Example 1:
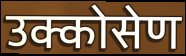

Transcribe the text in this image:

उक्कोसेण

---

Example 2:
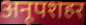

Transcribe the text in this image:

अनूपशहर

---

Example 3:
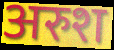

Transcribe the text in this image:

अरुश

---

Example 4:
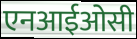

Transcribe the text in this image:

एनआईओसी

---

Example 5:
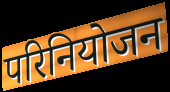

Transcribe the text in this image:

परिनियोजन